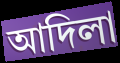
আদিলা